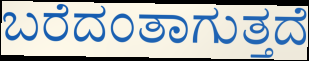
ಬರೆದಂತಾಗುತ್ತದೆ